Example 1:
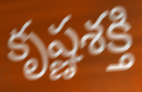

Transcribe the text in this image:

కృష్ణశక్తి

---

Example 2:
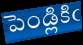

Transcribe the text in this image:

పెండ్లికిఁ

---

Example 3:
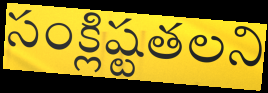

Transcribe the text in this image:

సంక్లిష్టతలని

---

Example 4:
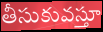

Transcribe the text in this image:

తీసుకువస్తూ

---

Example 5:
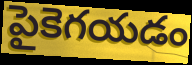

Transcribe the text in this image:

పైకెగయడం